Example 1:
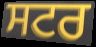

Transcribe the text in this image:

ਸਟਰ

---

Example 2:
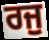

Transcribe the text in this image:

ਰਜੁ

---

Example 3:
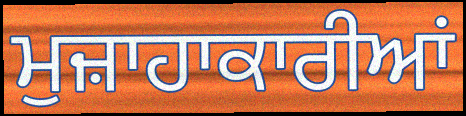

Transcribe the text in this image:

ਮੁਜ਼ਾਹਾਕਾਰੀਆਂ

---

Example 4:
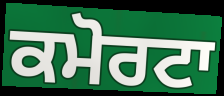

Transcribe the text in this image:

ਕਮੋਰਟਾ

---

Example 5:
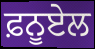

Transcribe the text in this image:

ਫ਼ਨੂਏਲ